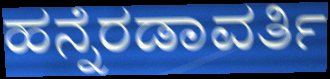
ಹನ್ನೆರಡಾವರ್ತಿ